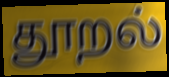
தூறல்